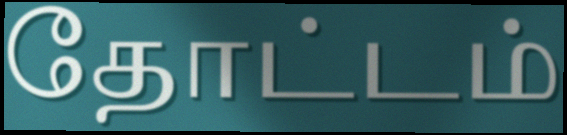
தோட்டம்